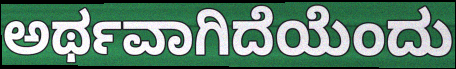
ಅರ್ಥವಾಗಿದೆಯೆಂದು